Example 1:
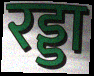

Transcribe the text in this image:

रड्डा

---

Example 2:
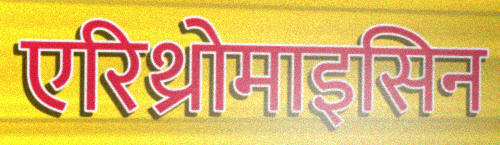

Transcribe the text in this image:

एरिथ्रोमाइसिन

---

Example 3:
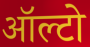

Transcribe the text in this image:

ऑल्टो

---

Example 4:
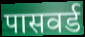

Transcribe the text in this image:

पासवर्ड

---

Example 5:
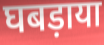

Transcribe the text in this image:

घबड़ाया